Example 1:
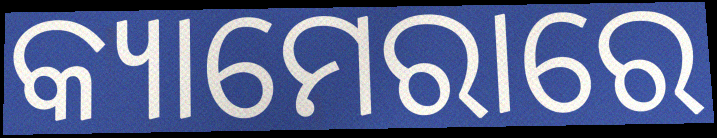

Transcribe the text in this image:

କ୍ୟାମେରାରେ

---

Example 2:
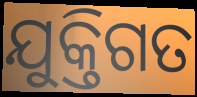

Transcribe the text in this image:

ଯୁକ୍ତିଗତ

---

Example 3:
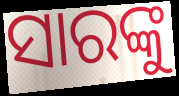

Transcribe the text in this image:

ସାରଙ୍କୁ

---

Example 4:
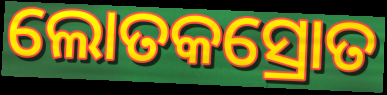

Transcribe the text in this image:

ଲୋତକସ୍ରୋତ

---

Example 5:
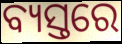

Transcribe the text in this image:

ବ୍ୟସ୍ତରେ